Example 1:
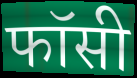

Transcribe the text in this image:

फॉसी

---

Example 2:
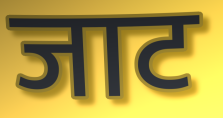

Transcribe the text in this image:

जाट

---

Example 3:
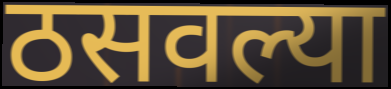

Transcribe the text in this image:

ठसवल्या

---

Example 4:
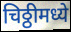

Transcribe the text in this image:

चिठ्ठीमध्ये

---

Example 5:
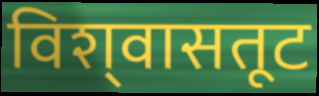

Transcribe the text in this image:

विश्वासतूट